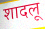
शादलू